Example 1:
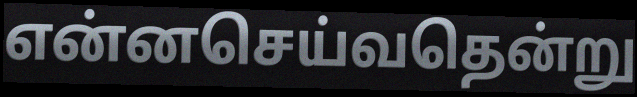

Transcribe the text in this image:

என்னசெய்வதென்று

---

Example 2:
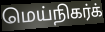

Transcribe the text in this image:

மெய்நிகர்க்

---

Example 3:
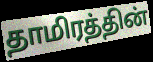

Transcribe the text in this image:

தாமிரத்தின்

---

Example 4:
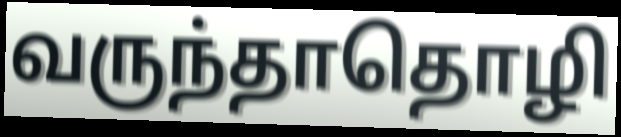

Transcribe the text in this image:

வருந்தாதொழி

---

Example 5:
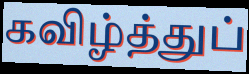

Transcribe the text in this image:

கவிழ்த்துப்